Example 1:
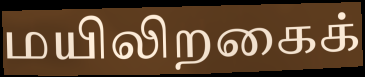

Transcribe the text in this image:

மயிலிறகைக்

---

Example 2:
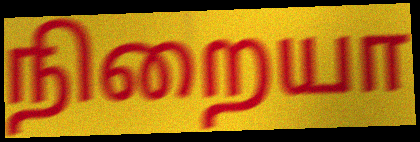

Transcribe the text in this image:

நிறையா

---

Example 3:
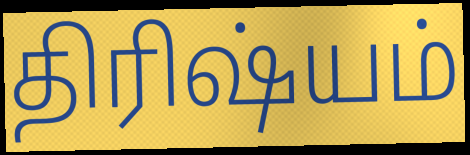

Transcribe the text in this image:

திரிஷ்யம்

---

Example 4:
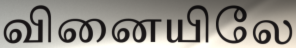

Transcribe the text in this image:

வினையிலே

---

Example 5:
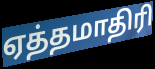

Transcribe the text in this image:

ஏத்தமாதிரி